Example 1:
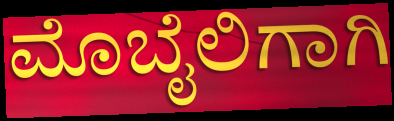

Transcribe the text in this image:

ಮೊಬೈಲಿಗಾಗಿ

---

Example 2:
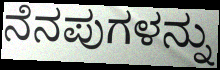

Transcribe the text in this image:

ನೆನಪುಗಳನ್ನು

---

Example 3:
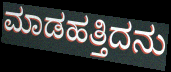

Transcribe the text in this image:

ಮಾಡಹತ್ತಿದನು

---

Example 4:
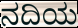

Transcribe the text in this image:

ನದಿಯ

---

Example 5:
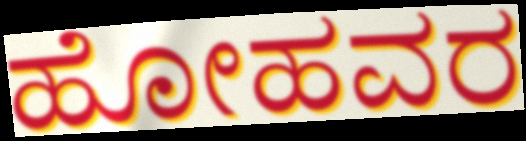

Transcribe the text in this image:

ಹೋಹವರ